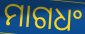
ମାଗଧଂ